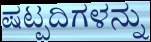
ಷಟ್ಪದಿಗಳನ್ನು